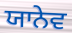
ਯਾਨੇਵ